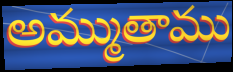
అమ్ముతాము